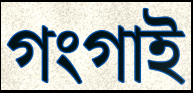
গংগাই